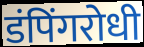
डंपिंगरोधी